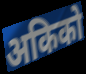
अकिको